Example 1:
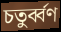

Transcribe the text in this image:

চতুর্ব্বণ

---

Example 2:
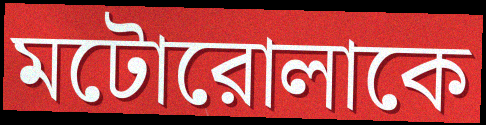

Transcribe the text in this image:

মটোরোলাকে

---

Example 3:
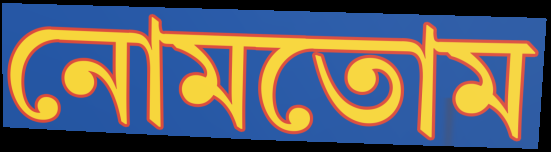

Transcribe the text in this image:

নোমতোম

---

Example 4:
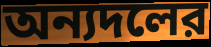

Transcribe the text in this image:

অন্যদলের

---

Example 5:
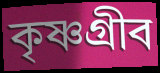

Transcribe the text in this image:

কৃষ্ণগ্রীব